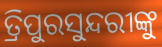
ତ୍ରିପୁରସୁନ୍ଦରୀଙ୍କୁ